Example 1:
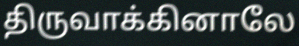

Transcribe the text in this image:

திருவாக்கினாலே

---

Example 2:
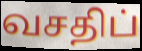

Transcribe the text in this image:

வசதிப்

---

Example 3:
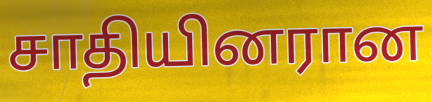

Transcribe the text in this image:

சாதியினரான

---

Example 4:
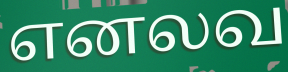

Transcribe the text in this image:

எனலவ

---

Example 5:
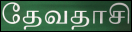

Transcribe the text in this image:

தேவதாசி